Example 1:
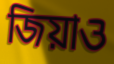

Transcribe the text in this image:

জিয়াও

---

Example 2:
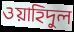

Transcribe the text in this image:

ওয়াহিদুল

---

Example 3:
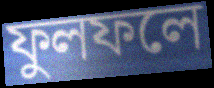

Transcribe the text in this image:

ফুলফলে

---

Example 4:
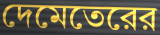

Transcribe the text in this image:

দেমেতেরের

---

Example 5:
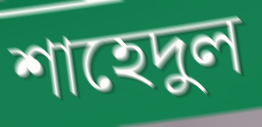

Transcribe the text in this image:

শাহেদুল